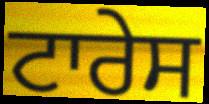
ਟਾਰੇਸ